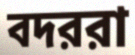
বদররা